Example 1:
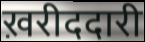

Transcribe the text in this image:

ख़रीददारी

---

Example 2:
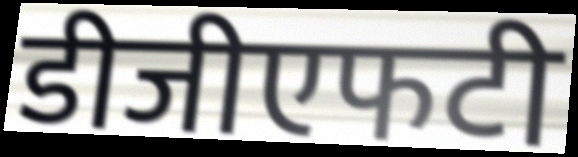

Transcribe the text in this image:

डीजीएफटी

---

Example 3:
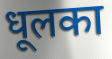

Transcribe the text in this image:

धूलका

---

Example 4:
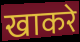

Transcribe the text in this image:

खाकरे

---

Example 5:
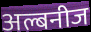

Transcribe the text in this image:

अल्‍बनीज